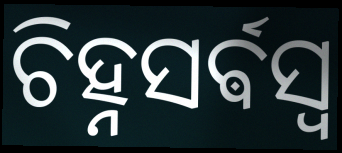
ଚିହ୍ନସର୍ଵସ୍ଵ